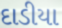
દાડીયા